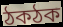
ঠকঠক